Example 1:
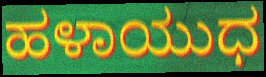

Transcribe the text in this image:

ಹಳಾಯುಧ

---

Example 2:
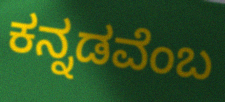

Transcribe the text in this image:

ಕನ್ನಡವೆಂಬ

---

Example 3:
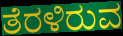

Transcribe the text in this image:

ತೆರಳಿರುವ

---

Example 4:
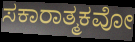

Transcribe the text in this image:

ಸಕಾರಾತ್ಮಕವೋ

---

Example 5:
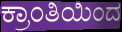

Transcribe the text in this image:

ಕ್ರಾಂತಿಯಿಂದ